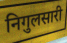
निगुलसारी